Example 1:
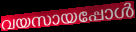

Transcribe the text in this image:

വയസായപ്പോൾ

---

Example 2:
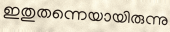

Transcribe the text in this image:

ഇതുതന്നെയായിരുന്നു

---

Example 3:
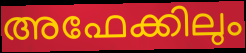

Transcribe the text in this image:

അഫേക്കിലും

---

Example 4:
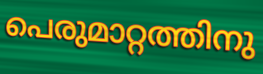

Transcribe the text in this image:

പെരുമാറ്റത്തിനു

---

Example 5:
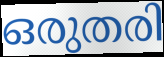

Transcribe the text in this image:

ഒരുതരി